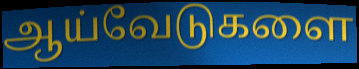
ஆய்வேடுகளை